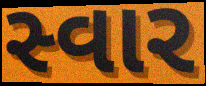
સ્વાર